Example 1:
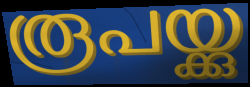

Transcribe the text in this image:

രൂപയ്ക്കു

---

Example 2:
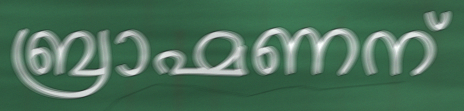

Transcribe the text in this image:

ബ്രാഹ്മണന്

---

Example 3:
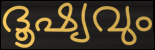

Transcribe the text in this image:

ദൂഷ്യവും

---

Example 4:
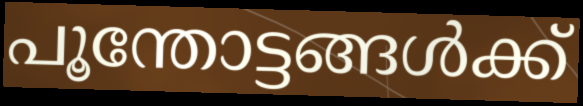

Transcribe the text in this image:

പൂന്തോട്ടങ്ങൾക്ക്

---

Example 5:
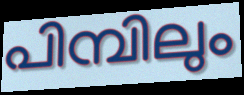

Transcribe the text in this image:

പിമ്പിലും